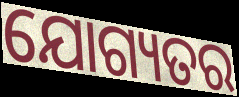
ଯୋଗ୍ୟତର